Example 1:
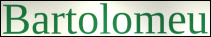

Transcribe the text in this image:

Bartolomeu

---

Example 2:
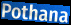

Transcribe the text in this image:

Pothana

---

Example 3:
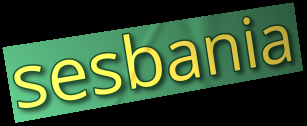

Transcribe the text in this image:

sesbania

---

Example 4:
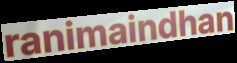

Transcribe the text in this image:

ranimaindhan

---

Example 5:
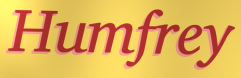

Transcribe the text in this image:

Humfrey